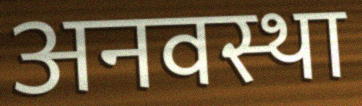
अनवस्था